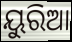
ୟୁରିଆ